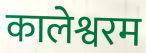
कालेश्वरम